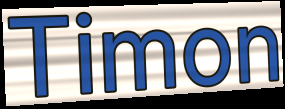
Timon